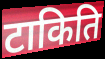
टाकिति